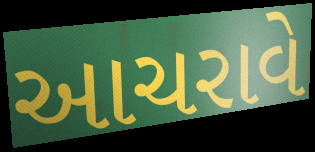
આચરાવે